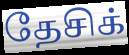
தேசிக்